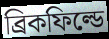
ব্রিকফিল্ডে